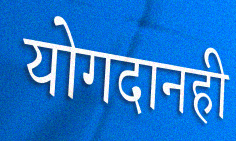
योगदानही